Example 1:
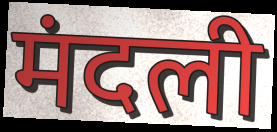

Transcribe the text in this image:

मंदली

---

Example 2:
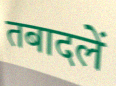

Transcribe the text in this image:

तबादलें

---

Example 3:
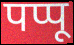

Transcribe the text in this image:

पप्‍पू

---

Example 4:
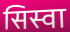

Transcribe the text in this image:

सिस्वा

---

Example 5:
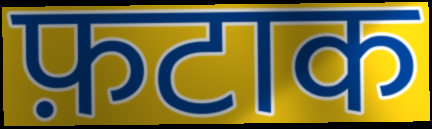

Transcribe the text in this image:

फ़टाक